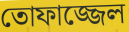
তোফাজ্জেল